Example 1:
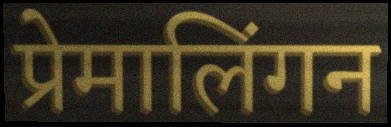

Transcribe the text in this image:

प्रेमालिंगन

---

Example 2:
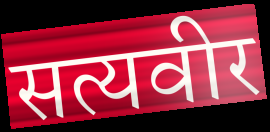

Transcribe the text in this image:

सत्यवीर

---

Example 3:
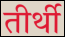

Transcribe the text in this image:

तीर्थी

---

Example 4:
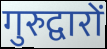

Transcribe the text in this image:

गुरुद्वारों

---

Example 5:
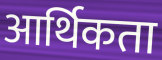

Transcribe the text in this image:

आर्थिकता